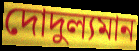
দোদুল্যমান